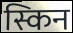
स्किन